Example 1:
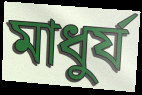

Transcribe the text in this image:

মাধুর্য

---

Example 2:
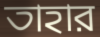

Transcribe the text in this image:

তাহার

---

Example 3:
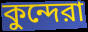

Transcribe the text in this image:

কুন্দেরা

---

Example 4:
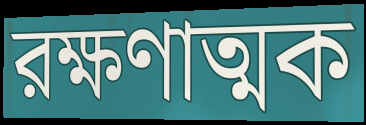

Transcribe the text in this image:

রক্ষণাত্মক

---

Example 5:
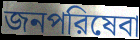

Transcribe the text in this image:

জনপরিষেবা